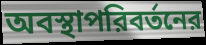
অবস্থাপরিবর্তনের